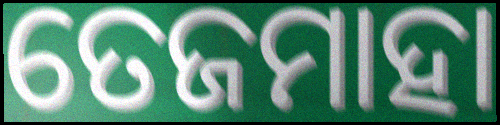
ତେଜମାହା